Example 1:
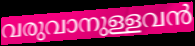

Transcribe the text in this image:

വരുവാനുള്ളവൻ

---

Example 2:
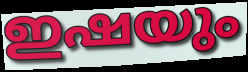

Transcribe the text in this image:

ഇഷയും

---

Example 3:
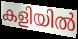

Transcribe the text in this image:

കളിയിൽ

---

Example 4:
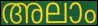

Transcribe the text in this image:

അലാം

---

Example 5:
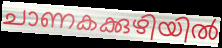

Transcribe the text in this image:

ചാണകക്കുഴിയിൽ